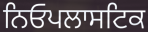
ਨਿਓਪਲਾਸਟਿਕ